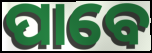
ପାବେ